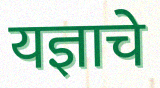
यज्ञाचे